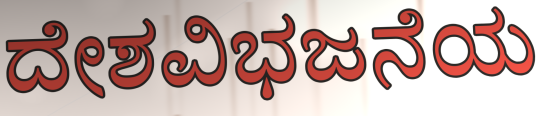
ದೇಶವಿಭಜನೆಯ